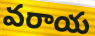
వరాయ